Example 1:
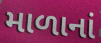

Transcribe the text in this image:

માળાનાં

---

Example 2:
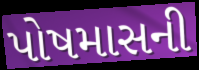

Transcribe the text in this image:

પોષમાસની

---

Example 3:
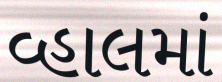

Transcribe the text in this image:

વ્હાલમાં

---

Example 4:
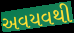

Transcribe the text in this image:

અવયવથી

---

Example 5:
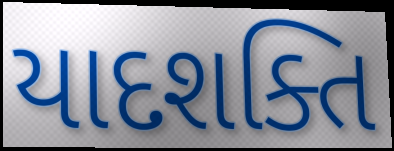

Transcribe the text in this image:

યાદશક્તિ